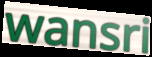
wansri